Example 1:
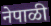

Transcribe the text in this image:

नेपाळी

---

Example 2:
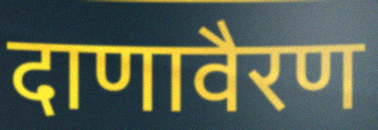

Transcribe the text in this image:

दाणावैरण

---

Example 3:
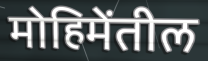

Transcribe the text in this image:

मोहिमेंतील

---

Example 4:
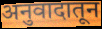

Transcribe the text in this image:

अनुवादातून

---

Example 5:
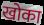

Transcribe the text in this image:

खोका